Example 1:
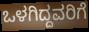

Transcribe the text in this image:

ಒಳಗಿದ್ದವರಿಗೆ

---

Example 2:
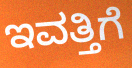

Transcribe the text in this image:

ಇವತ್ತಿಗೆ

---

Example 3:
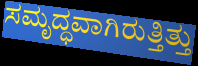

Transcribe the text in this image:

ಸಮೃದ್ಧವಾಗಿರುತ್ತಿತ್ತು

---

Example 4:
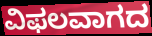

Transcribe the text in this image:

ವಿಫಲವಾಗದ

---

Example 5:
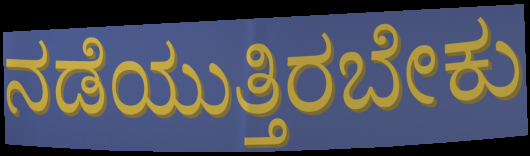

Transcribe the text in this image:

ನಡೆಯುತ್ತಿರಬೇಕು